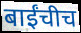
बाईंचीच